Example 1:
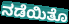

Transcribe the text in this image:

ನಡೆಯಿತೊ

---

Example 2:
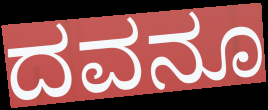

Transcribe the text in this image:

ದವನೂ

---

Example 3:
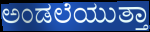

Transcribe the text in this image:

ಅಂಡಲೆಯುತ್ತಾ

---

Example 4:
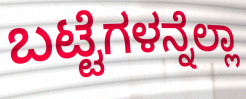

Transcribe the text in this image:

ಬಟ್ಟೆಗಳನ್ನೆಲ್ಲಾ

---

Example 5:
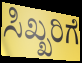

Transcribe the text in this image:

ಸಿಖ್ಖರಿಗೆ